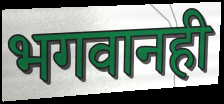
भगवानही